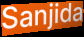
Sanjida